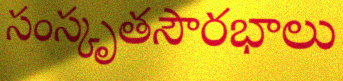
సంస్కృతసౌరభాలు